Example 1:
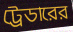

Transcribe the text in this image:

ট্রেডারের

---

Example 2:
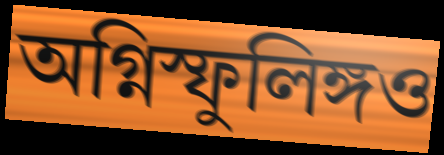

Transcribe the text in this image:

অগ্নিস্ফুলিঙ্গও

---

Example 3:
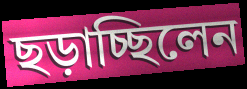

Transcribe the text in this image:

ছড়াচ্ছিলেন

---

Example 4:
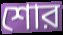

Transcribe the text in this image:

শোর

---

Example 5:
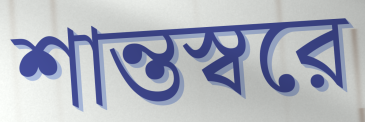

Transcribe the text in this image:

শান্তস্বরে